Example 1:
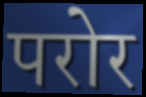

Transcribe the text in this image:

परोर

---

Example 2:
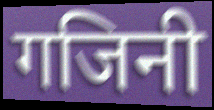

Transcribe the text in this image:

गजिनी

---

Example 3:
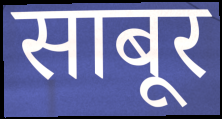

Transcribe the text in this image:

साबूर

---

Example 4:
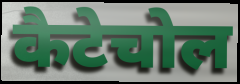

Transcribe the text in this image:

कैटेचोल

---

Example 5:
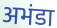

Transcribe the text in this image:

अभंडा